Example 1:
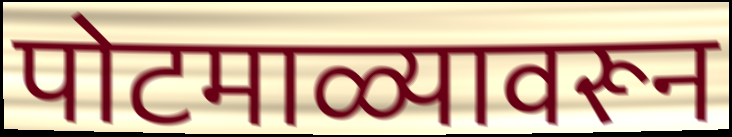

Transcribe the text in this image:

पोटमाळ्यावरून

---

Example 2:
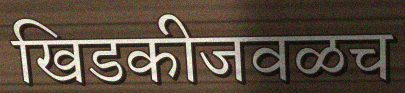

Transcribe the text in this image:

खिडकीजवळच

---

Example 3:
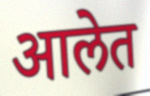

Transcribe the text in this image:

आलेत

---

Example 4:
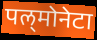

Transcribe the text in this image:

पल्मोनेटा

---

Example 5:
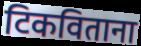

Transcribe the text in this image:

टिकविताना